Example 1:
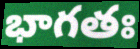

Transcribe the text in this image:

భాగతః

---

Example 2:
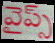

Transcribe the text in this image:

వైప్స్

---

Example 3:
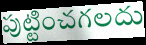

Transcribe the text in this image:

పుట్టించగలదు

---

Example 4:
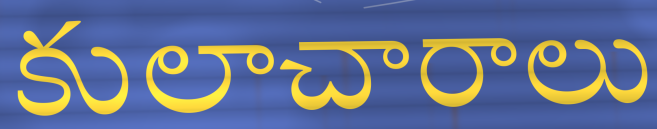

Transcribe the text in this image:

కులాచారాలు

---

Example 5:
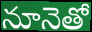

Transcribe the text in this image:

నూనెతో